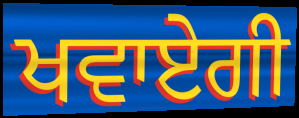
ਖਵਾਏਗੀ